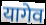
यागेव